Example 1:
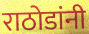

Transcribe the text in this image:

राठोडांनी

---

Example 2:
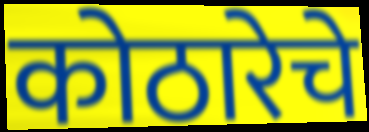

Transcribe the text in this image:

कोठारेचे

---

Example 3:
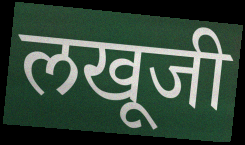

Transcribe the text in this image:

लखूजी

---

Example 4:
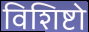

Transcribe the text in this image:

विशिष्टो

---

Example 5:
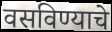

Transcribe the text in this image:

वसविण्याचे